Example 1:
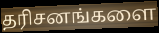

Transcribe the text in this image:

தரிசனங்களை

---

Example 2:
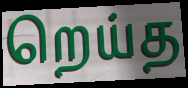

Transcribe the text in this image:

றெய்த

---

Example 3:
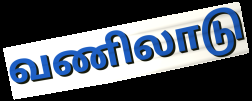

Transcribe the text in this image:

வணிலாடு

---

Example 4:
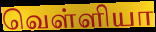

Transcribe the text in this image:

வெள்ளியா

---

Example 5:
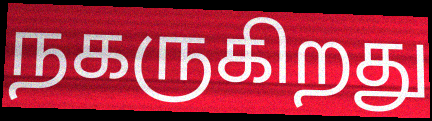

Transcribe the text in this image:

நகருகிறது